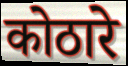
कोठारे